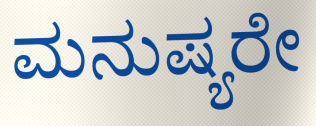
ಮನುಷ್ಯರೇ